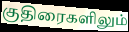
குதிரைகளிலும்